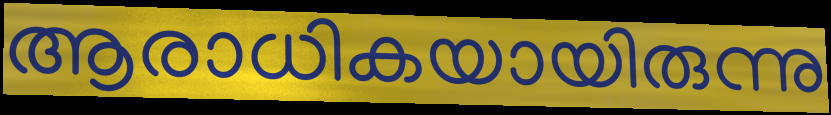
ആരാധികയായിരുന്നു